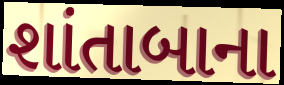
શાંતાબાના